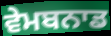
ਵੇਮਬਨਾਡ